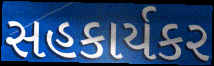
સહકાર્યકર